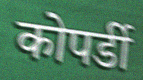
कोपर्डी